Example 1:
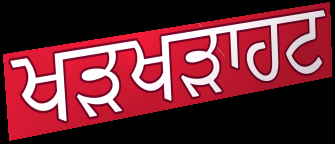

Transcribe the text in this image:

ਖੜਖੜਾਹਟ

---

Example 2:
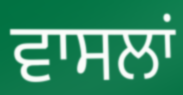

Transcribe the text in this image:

ਵਾਸਲਾਂ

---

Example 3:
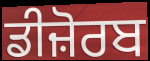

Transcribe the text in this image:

ਡੀਜ਼ੋਰਬ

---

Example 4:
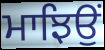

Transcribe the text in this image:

ਮਾਝਿਉਂ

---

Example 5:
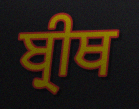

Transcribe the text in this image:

ਬ੍ਰੀਥ